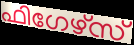
ഫിഗേഴ്സ്